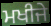
ਮਖੀਜੇ